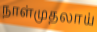
நாள்முதலாய்